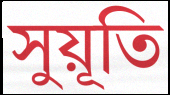
সুয়ূতি